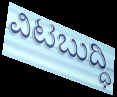
ವಿಟಬುದ್ಧಿ